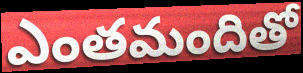
ఎంతమందితో